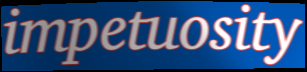
impetuosity